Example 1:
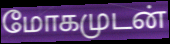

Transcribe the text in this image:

மோகமுடன்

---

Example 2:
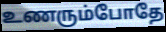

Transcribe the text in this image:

உணரும்போதே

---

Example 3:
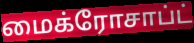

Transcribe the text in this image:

மைக்ரோசாப்ட்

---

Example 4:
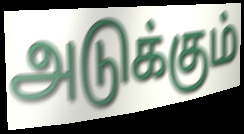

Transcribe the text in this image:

அடுக்கும்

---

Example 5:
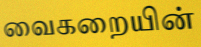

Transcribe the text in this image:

வைகறையின்